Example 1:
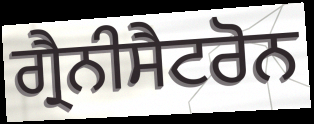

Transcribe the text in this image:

ਗ੍ਰੈਨੀਸੈਟਰੋਨ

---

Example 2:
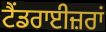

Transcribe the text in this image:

ਟੈਂਡਰਾਈਜ਼ਰਾਂ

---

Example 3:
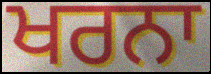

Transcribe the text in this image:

ਖਰਨਾ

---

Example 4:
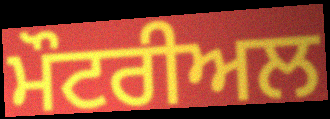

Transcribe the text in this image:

ਮੌਟਰੀਅਲ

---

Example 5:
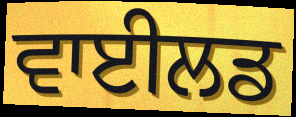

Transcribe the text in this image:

ਵਾਈਲਡ